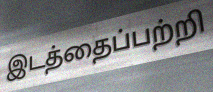
இடத்தைப்பற்றி